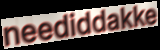
neediddakke